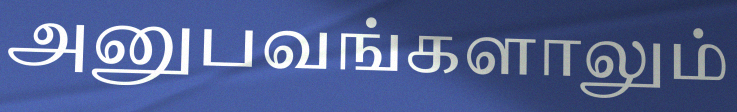
அனுபவங்களாலும்